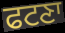
ਫਟਣਾ